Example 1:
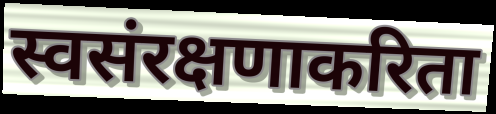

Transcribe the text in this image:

स्वसंरक्षणाकरिता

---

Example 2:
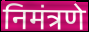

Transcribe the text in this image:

निमंत्रणे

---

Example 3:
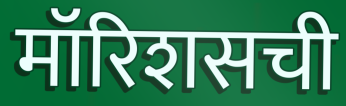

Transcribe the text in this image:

मॉरिशसची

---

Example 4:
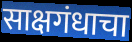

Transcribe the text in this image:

साक्षगंधाचा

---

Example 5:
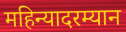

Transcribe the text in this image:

महिन्यादरम्यान